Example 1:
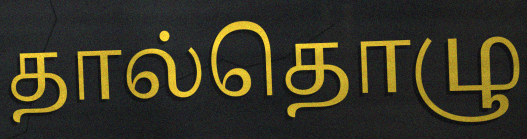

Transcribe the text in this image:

தால்தொழு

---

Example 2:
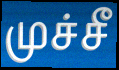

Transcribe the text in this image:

முச்சீ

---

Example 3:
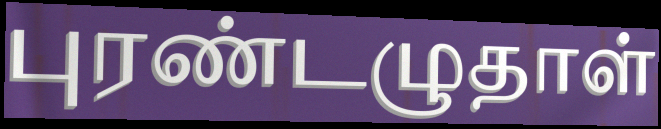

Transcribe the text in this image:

புரண்டழுதாள்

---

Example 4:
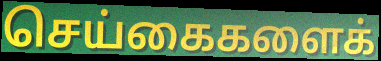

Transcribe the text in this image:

செய்கைகளைக்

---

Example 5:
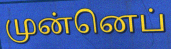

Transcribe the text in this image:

முன்னெப்